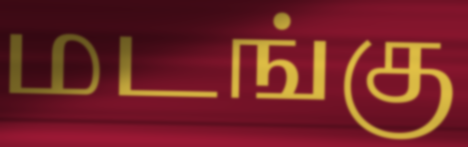
மடங்கு